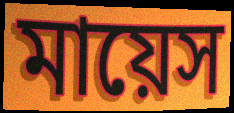
মায়েস